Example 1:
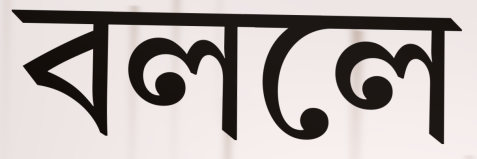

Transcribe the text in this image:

বললে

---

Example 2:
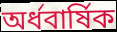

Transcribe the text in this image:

অর্ধবার্ষিক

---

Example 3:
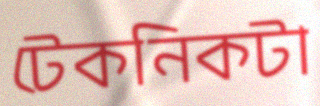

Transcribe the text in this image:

টেকনিকটা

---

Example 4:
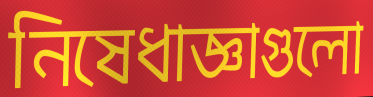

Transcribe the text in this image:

নিষেধাজ্ঞাগুলো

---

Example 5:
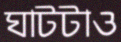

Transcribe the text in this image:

ঘাটটাও